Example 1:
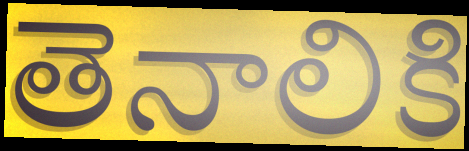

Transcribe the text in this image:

తెనాలికి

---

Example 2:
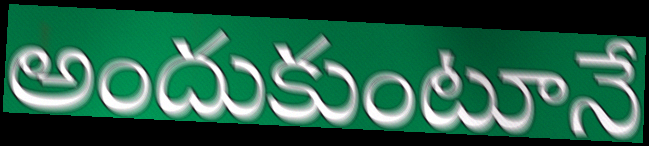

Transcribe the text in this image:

అందుకుంటూనే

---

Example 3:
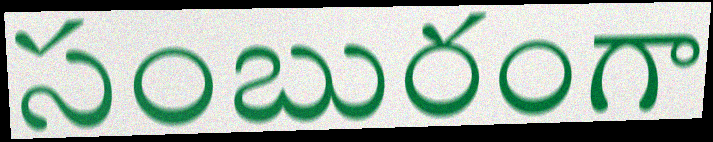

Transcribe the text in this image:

సంబురంగా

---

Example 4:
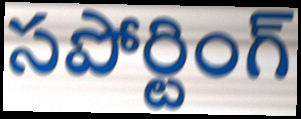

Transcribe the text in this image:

సపోర్టింగ్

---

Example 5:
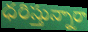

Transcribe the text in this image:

ధరిస్తున్నారా